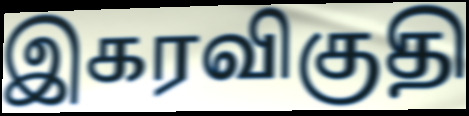
இகரவிகுதி